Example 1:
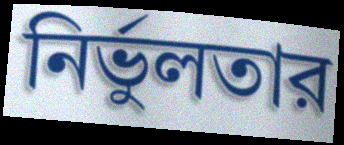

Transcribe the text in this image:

নির্ভুলতার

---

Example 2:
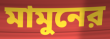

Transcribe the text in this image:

মামুনের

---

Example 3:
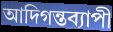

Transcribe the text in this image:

আদিগন্তব্যাপী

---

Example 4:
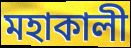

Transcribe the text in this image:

মহাকালী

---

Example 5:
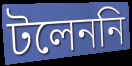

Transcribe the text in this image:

টলেননি